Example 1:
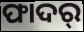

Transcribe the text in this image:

ଫାଦର୍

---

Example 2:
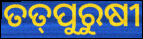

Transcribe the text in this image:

ତତ୍‌ପୁରୁଷୀ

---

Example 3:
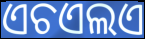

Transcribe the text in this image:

ଏଚଏଲଏ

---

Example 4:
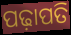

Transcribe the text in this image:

ପଢ଼ାପତି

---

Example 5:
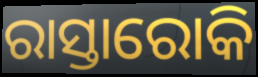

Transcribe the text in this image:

ରାସ୍ତାରୋକି